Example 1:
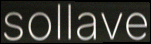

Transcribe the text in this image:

sollave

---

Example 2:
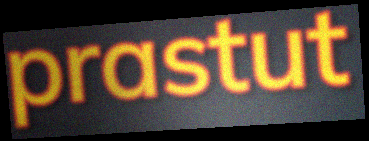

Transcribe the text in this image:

prastut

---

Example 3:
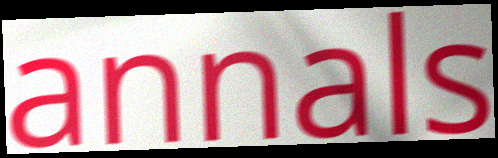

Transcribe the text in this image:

annals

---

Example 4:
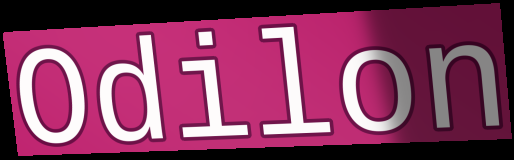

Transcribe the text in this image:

Odilon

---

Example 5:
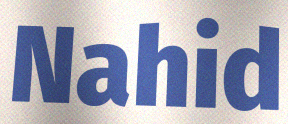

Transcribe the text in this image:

Nahid